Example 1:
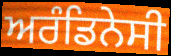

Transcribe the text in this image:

ਅਰੰਡਿਨੇਸੀ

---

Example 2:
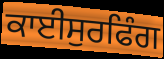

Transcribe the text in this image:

ਕਾਈਸੁਰਫਿੰਗ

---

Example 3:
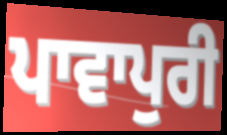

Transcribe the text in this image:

ਪਾਵਾਪੁਰੀ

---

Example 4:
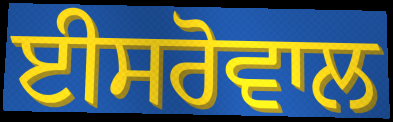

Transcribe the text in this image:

ਈਸਰੋਵਾਲ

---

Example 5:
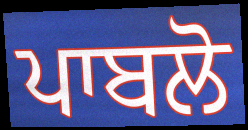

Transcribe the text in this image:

ਪਾਬਲੋ